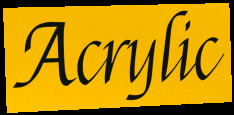
Acrylic